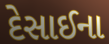
દેસાઈના